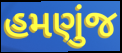
હમણુંજ